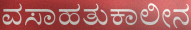
ವಸಾಹತುಕಾಲೀನ